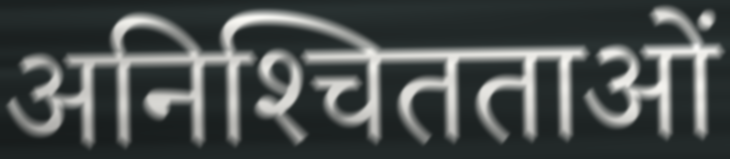
अनिश्‍चितताओं